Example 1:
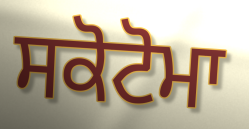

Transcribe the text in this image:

ਸਕੋਟੋਮਾ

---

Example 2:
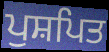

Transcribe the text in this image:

ਪੁਸ਼ਪਿਤ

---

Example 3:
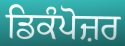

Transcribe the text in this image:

ਡਿਕੰਪੋਜ਼ਰ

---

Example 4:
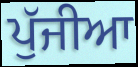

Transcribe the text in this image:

ਪੁੱਜੀਆ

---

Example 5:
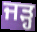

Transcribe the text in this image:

ਜੜ੍ਹ